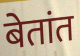
बेतांत